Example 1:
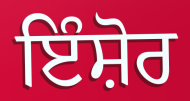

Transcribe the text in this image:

ਇੰਸ਼ੋਰ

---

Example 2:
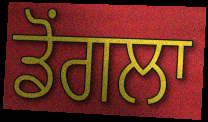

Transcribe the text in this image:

ਡੋਂਗਲਾ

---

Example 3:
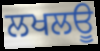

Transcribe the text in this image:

ਲਖਲਊ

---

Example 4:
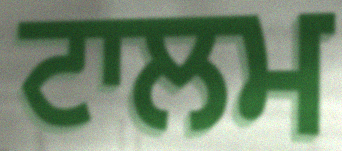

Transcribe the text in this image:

ਟਾਲਮ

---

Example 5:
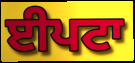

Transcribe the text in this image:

ਈਪਟਾ